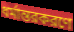
ধর্মান্তরকরণে